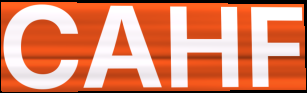
CAHF